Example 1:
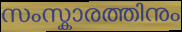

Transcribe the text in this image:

സംസ്കാരത്തിനും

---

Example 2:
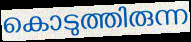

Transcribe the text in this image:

കൊടുത്തിരുന്ന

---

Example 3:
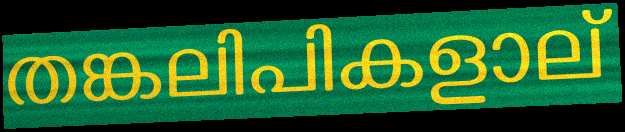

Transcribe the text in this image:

തങ്കലിപികളാല്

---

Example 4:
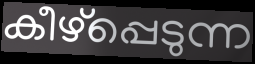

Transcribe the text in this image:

കീഴ്പ്പെടുന്ന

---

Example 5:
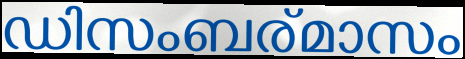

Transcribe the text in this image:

ഡിസംബര്മാസം